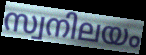
സ്വനിലയം